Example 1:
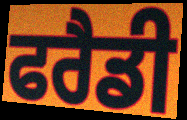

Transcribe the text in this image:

ਫਰੈਡੀ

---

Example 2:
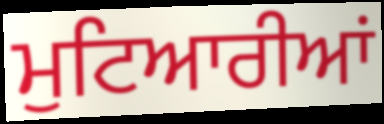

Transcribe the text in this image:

ਮੁਟਿਆਰੀਆਂ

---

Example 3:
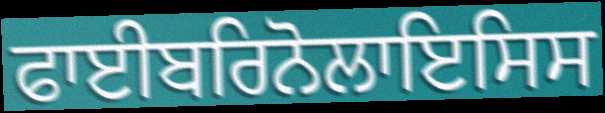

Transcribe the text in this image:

ਫਾਈਬਰਿਨੋਲਾਇਸਿਸ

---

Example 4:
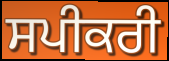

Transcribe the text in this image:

ਸਪੀਕਰੀ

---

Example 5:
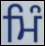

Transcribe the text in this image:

ਮਿੰ